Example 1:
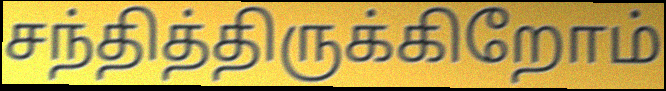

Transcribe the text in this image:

சந்தித்திருக்கிறோம்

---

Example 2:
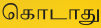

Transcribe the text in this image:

கொடாது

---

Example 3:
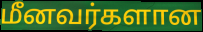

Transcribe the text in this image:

மீனவர்களான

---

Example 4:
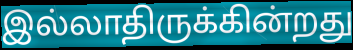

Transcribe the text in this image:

இல்லாதிருக்கின்றது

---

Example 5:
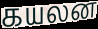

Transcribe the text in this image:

கயலன